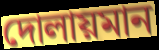
দোলায়মান